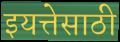
इयत्तेसाठी